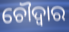
ଚୌଦ୍ବାର